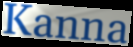
Kanna